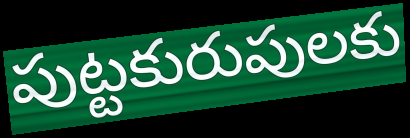
పుట్టకురుపులకు